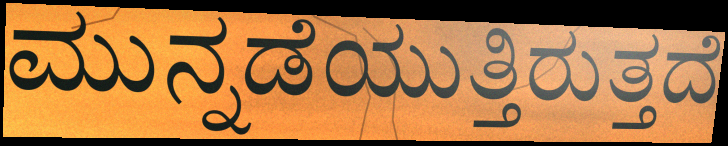
ಮುನ್ನಡೆಯುತ್ತಿರುತ್ತದೆ